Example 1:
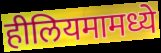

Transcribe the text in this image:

हीलियमामध्ये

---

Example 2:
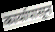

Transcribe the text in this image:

कार्यापासून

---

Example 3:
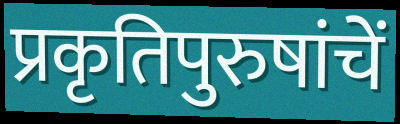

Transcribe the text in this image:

प्रकृतिपुरुषांचें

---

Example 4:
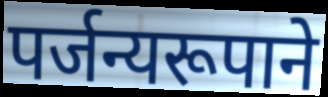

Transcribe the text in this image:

पर्जन्यरूपाने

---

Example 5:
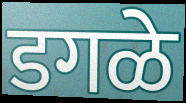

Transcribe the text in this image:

डगळे